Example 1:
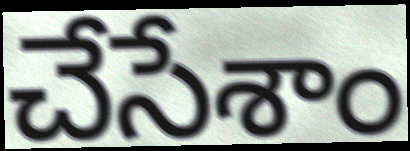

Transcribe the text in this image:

చేసేశాం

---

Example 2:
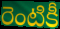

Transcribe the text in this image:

రెంటికీ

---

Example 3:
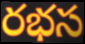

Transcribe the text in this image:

రభస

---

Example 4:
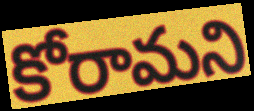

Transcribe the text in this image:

కోరామని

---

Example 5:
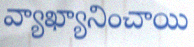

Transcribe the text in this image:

వ్యాఖ్యానించాయి